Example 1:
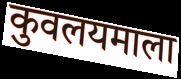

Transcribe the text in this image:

कुवलयमाला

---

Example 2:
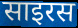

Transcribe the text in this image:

साइरस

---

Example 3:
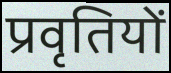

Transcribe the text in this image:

प्रवृतियों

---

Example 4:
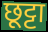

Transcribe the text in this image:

छूट्टा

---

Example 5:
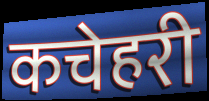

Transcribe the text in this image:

कचेहरी